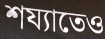
শয্যাতেও